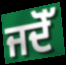
ਜਦੋੱ